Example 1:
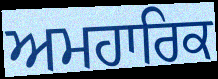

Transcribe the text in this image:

ਅਮਹਾਰਿਕ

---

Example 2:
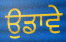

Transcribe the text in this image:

ਉਡਾਵੇ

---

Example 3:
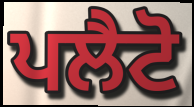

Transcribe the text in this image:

ਪਲੈਟੋ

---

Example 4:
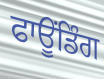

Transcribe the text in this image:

ਫਾਊਂਡਿੰਗ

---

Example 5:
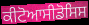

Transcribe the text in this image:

ਕੀਟੋਆਸੀਡੋਸਿਸ